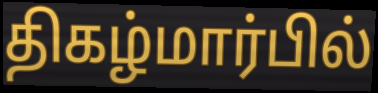
திகழ்மார்பில்